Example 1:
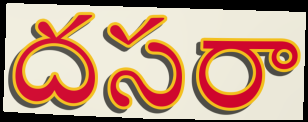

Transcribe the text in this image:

దసరా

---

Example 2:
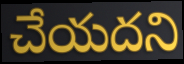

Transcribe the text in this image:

చేయదని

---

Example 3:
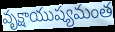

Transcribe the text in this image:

వృక్షాయుష్యమంత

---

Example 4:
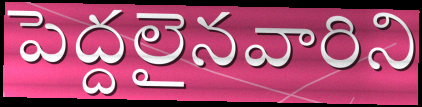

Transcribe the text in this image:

పెద్దలైనవారిని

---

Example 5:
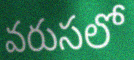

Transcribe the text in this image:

వరుసలో